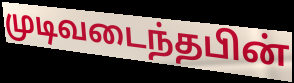
முடிவடைந்தபின்